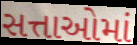
સત્તાઓમાં